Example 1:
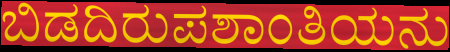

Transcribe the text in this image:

ಬಿಡದಿರುಪಶಾಂತಿಯನು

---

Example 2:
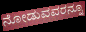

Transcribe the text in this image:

ನೋಡುವವರನ್ನೂ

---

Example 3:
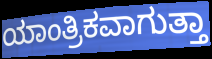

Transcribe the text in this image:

ಯಾಂತ್ರಿಕವಾಗುತ್ತಾ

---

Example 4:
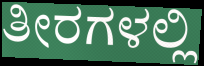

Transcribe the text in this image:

ತೀರಗಳಲ್ಲಿ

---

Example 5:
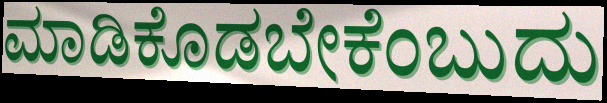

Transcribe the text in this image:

ಮಾಡಿಕೊಡಬೇಕೆಂಬುದು